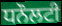
ਧਨੌਲਟੀ